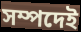
সম্পদেই